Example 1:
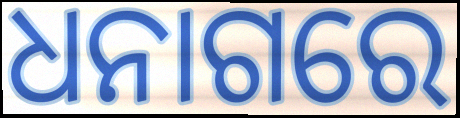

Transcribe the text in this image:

ଧନାଗରେ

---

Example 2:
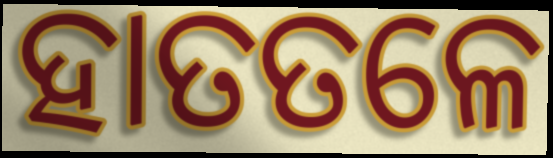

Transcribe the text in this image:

ହାତତଳେ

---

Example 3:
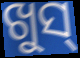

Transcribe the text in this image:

ଖୁସ୍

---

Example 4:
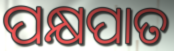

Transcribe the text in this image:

ପକ୍ଷପାତ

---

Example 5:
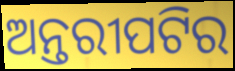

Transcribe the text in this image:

ଅନ୍ତରୀପଟିର